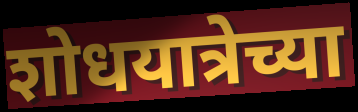
शोधयात्रेच्या